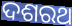
ଦଶରଥ